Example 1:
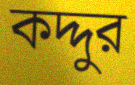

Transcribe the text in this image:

কদ্দুর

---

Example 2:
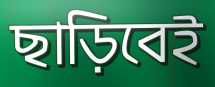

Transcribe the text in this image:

ছাড়িবেই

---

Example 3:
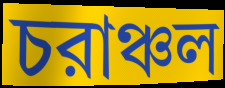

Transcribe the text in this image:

চরাঞ্চল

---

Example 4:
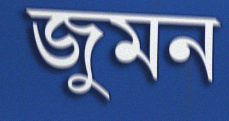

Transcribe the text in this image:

জুমন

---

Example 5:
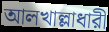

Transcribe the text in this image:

আলখাল্লাধারী